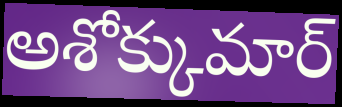
అశోక్కుమార్